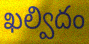
ఖల్విదం